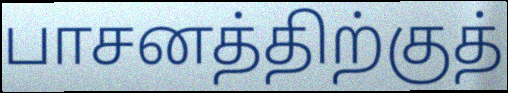
பாசனத்திற்குத்